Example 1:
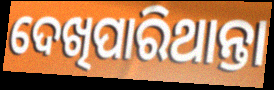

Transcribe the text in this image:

ଦେଖିପାରିଥାନ୍ତା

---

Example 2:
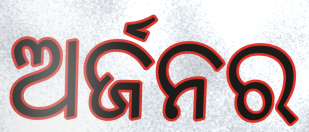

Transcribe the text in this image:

ଅର୍ଜନର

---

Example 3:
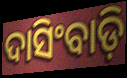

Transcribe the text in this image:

ଦାସିଂବାଡ଼ି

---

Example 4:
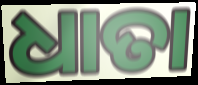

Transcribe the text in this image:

ଧାତା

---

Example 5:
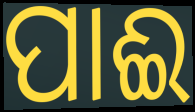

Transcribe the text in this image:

ପାଈ